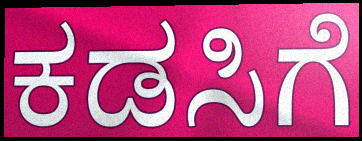
ಕಡಸಿಗೆ